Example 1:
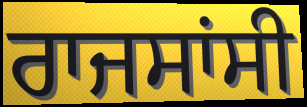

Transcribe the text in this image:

ਰਾਜਸਾਂਸੀ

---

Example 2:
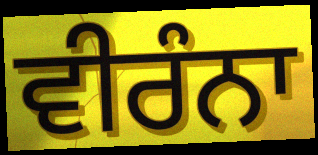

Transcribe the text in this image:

ਵੀਰੰਨਾ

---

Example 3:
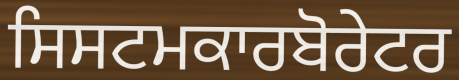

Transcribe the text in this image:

ਸਿਸਟਮਕਾਰਬੋਰੇਟਰ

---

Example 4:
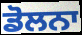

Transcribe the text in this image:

ਡੋਲਨਾ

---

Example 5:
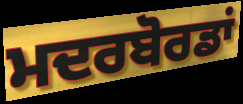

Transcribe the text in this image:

ਮਦਰਬੋਰਡਾਂ